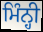
ਮਿੰਨ੍ਹੀ